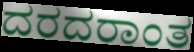
ದರದರಾಂತ